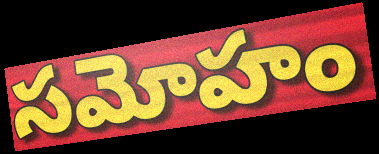
సమోహం